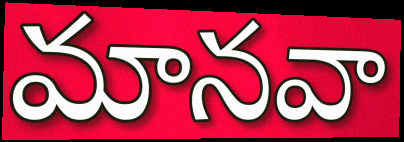
మానవా